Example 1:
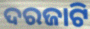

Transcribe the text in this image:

ଦରଜାଟି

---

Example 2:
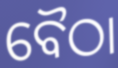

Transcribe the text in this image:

ବୈଠା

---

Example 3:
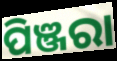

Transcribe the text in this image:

ପିଞ୍ଜରା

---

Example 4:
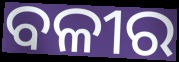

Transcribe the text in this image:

ବଳୀର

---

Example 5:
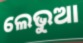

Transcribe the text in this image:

ଲେଭୁଆ